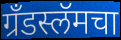
ग्रँडस्लॅमचा